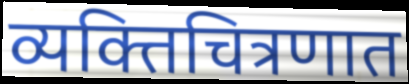
व्यक्तिचित्रणात